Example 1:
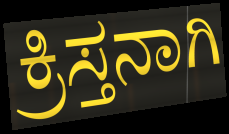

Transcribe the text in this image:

ಕ್ರಿಸ್ತನಾಗಿ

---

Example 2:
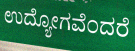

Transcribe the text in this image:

ಉದ್ಯೋಗವೆಂದರೆ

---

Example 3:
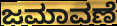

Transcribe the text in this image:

ಜಮಾವಣೆ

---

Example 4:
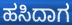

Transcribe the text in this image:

ಹಸಿದಾಗ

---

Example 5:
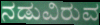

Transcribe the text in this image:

ನಡುವಿರುವ